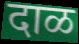
दाळ